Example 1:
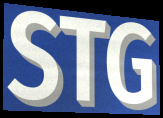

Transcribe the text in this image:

STG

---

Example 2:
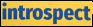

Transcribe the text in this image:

introspect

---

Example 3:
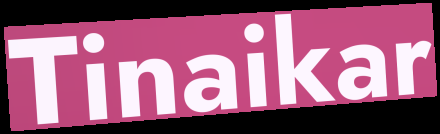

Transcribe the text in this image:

Tinaikar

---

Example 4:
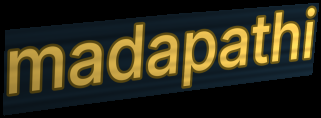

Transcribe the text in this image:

madapathi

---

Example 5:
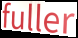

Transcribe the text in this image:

fuller